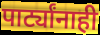
पार्ट्यांनाही